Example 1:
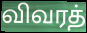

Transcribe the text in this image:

விவரத்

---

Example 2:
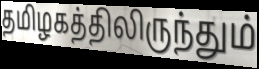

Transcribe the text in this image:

தமிழகத்திலிருந்தும்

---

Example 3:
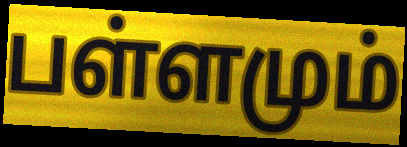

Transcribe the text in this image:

பள்ளமும்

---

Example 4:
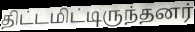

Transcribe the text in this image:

திட்டமிட்டிருந்தனர்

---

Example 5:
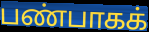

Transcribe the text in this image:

பண்பாகக்